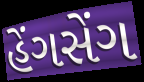
હેંગસેંગ